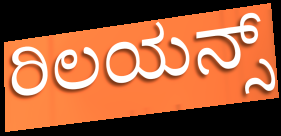
ರಿಲಯನ್ಸ್